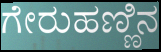
ಗೇರುಹಣ್ಣಿನ